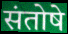
संतोषे